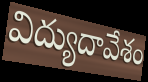
విద్యుదావేశం